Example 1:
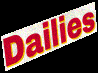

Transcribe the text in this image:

Dailies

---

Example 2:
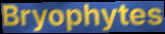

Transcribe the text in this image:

Bryophytes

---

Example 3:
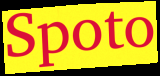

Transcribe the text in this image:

Spoto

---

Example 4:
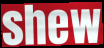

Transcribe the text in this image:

shew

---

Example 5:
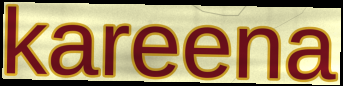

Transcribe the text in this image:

kareena